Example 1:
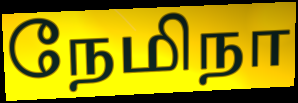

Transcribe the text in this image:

நேமிநா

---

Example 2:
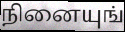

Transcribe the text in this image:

நினையுங்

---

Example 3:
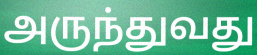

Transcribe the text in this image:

அருந்துவது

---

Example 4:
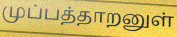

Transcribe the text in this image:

முப்பத்தாறனுள்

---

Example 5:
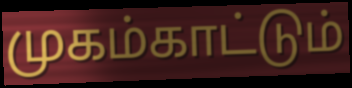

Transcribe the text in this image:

முகம்காட்டும்